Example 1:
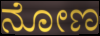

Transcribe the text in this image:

ನೋಣ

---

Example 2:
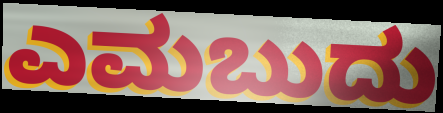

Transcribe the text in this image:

ಎಮಬುದು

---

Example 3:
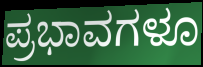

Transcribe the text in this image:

ಪ್ರಭಾವಗಳೂ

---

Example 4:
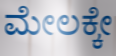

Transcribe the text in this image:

ಮೇಲಕ್ಕೇ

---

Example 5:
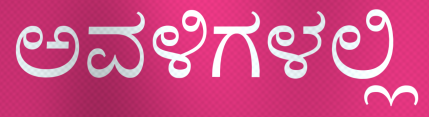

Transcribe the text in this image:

ಅವಳಿಗಳಲ್ಲಿ